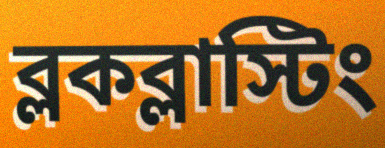
ব্লকব্লাস্টিং